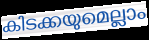
കിടക്കയുമെല്ലാം